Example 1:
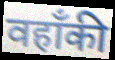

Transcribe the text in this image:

वहाँकी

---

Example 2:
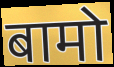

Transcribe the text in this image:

बामो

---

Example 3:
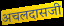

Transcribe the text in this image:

अचलदासजी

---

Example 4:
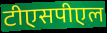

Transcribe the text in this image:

टीएसपीएल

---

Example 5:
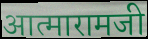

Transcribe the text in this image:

आत्मारामजी